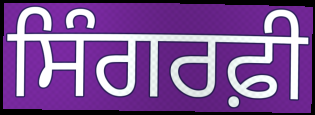
ਸਿੰਗਰਫ਼ੀ